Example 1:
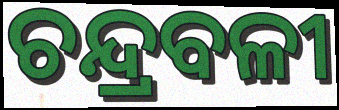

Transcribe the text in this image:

ଚନ୍ଦ୍ରବଳୀ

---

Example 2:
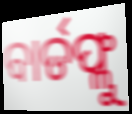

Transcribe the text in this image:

ବାର୍ଡଫ୍ଲୁ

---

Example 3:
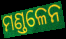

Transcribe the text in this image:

ମଣ୍ଡଳେନ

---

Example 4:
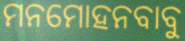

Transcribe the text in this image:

ମନମୋହନବାବୁ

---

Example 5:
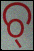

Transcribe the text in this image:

ଚ୍